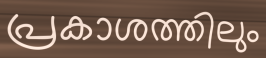
പ്രകാശത്തിലും